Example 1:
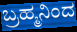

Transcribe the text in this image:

ಬ್ರಹ್ಮನಿಂದ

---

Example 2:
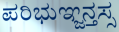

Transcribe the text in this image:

ಪರಿಭುಞ್ಜನ್ತಸ್ಸ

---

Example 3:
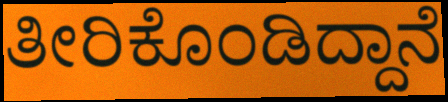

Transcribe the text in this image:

ತೀರಿಕೊಂಡಿದ್ದಾನೆ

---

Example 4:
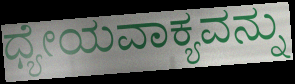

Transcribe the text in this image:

ಧ್ಯೇಯವಾಕ್ಯವನ್ನು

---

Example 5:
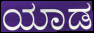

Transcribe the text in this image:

ಯಾಡ